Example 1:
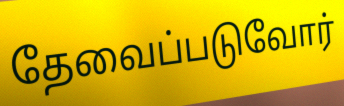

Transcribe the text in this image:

தேவைப்படுவோர்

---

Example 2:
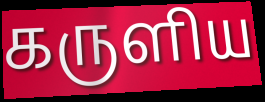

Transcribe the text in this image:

கருளிய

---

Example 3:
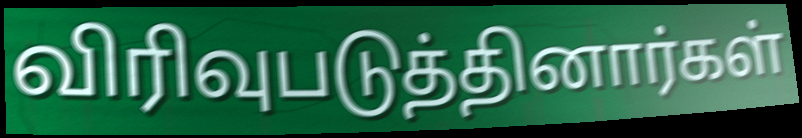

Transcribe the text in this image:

விரிவுபடுத்தினார்கள்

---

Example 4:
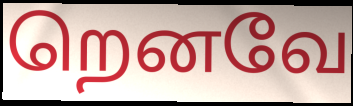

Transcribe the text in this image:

றெனவே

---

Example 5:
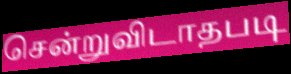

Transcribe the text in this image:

சென்றுவிடாதபடி